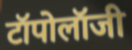
टॉपोलॉजी